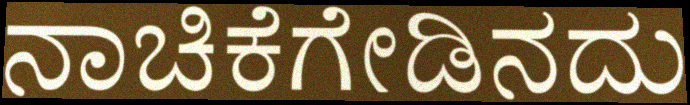
ನಾಚಿಕೆಗೇಡಿನದು